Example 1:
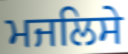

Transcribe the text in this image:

ਮਜਲਿਸੇ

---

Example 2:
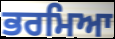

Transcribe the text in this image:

ਭਰਮਿਆ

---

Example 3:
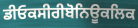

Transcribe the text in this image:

ਡੀਓਕਸੀਰੀਬੋਨਿਊਕਲਿਕ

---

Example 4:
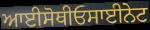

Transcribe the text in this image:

ਆਈਸੋਥੀਓਸਾਈਨੇਟ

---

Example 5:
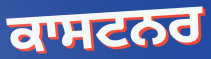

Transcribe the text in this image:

ਕਾਸਟਨਰ